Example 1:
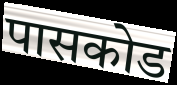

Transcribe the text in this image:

पासकोड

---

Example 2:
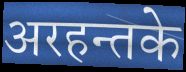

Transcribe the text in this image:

अरहन्तके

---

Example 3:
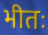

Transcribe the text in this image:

भीतः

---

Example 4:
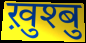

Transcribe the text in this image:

ख़ुश्बु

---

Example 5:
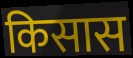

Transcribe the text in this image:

किसास